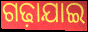
ଗଢ଼ାଯାଇ